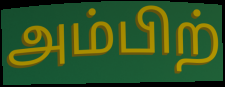
அம்பிற்